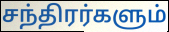
சந்திரர்களும்